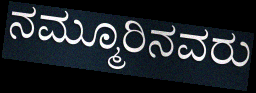
ನಮ್ಮೂರಿನವರು